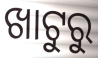
ଖାଟୁରୁ